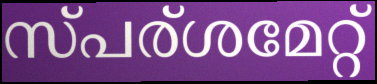
സ്പര്ശമേറ്റ്